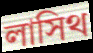
লাসিথ